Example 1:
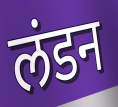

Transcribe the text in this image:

लंडन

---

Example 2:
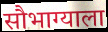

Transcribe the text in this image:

सौभाग्याला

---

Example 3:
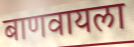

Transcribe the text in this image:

बाणवायला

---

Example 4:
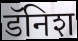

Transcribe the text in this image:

डॅनिश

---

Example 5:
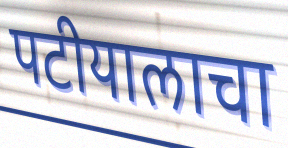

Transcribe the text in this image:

पटीयालाचा